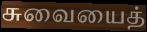
சுவையைத்